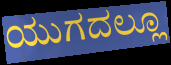
ಯುಗದಲ್ಲೂ